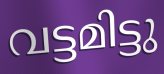
വട്ടമിട്ടു